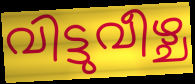
വിട്ടുവീഴ്ച